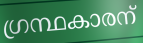
ഗ്രന്ഥകാരന്